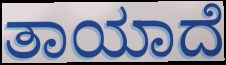
ತಾಯಾದೆ